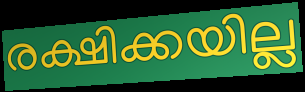
രക്ഷിക്കയില്ല